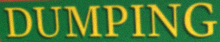
DUMPING